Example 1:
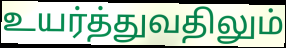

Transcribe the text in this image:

உயர்த்துவதிலும்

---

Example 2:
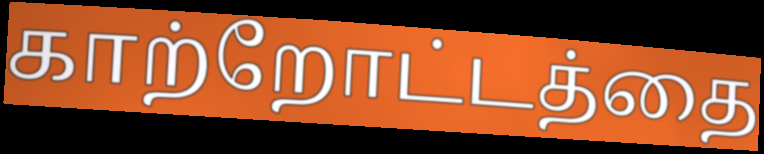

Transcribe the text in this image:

காற்றோட்டத்தை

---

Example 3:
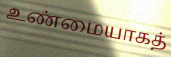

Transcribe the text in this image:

உண்மையாகத்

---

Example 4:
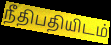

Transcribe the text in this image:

நீதிபதியிடம்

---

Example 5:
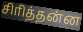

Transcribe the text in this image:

சிரித்தன்ன